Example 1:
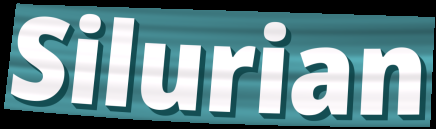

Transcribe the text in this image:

Silurian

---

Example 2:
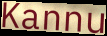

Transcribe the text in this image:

Kannu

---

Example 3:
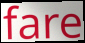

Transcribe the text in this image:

fare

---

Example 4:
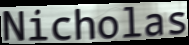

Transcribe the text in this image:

Nicholas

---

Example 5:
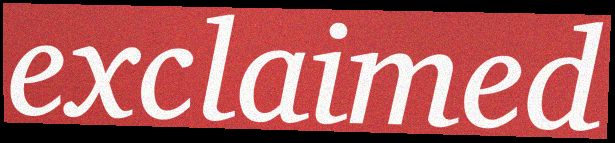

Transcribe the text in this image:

exclaimed